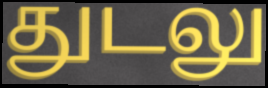
துடலு